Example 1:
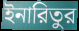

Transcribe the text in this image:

ইনারিতুর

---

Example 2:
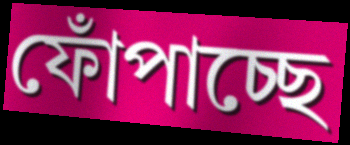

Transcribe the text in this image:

ফোঁপাচ্ছে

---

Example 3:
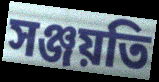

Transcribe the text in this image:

সঞ্জয়তি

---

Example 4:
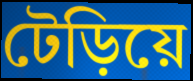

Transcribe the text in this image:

টেড়িয়ে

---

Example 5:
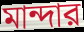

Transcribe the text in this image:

মান্দার